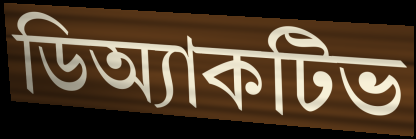
ডিঅ্যাকটিভ